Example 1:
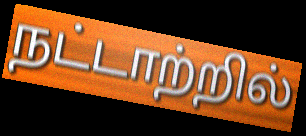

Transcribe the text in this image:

நட்டாற்றில்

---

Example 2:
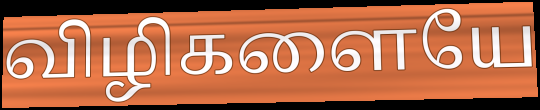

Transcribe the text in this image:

விழிகளையே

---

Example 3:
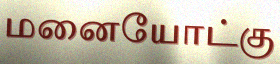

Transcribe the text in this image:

மனையோட்கு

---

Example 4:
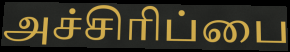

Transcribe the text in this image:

அச்சிரிப்பை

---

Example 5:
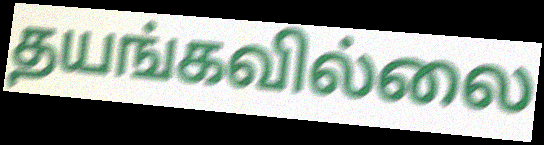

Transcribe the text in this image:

தயங்கவில்லை